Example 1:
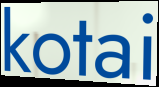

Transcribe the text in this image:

kotai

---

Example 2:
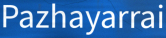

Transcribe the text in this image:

Pazhayarrai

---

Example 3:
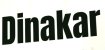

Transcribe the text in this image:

Dinakar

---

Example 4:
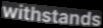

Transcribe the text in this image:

withstands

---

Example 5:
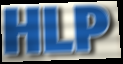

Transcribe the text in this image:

HLP